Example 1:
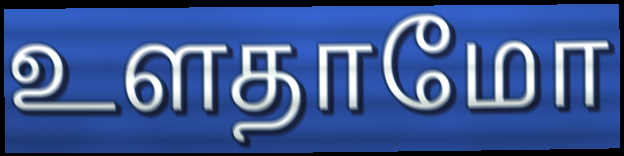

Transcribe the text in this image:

உளதாமோ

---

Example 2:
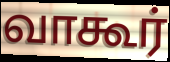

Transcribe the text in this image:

வாகூர்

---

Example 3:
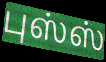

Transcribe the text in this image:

புஸ்ஸ்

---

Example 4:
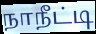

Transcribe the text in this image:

நாநீட்டி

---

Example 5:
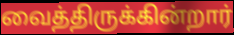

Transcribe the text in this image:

வைத்திருக்கின்றார்